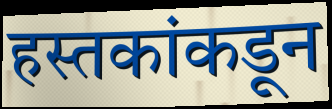
हस्तकांकडून